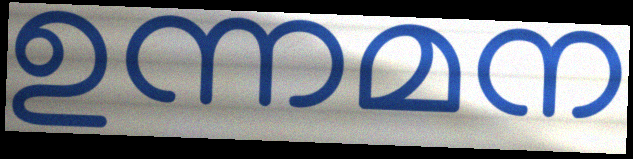
ഉന്നമന